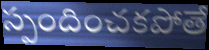
స్పందించకపోతే